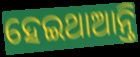
ହେଇଥାଆନ୍ତି